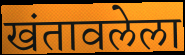
खंतावलेला